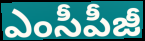
ఎంసీపీజీ